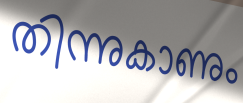
തിന്നുകാണും